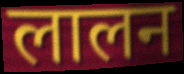
लालन